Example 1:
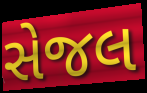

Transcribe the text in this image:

સેજલ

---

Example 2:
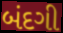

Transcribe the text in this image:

બંદગી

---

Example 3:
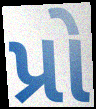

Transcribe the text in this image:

પ્રો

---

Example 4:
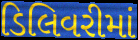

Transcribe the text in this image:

ડિલિવરીમાં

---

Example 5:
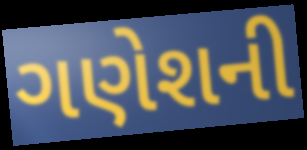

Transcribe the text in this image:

ગણેશની